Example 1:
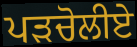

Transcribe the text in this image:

ਪੜਚੋਲੀਏ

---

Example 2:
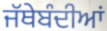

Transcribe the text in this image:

ਜੱਥੇਬੰਦੀਆਂ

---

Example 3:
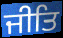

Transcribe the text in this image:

ਜੀਤਿ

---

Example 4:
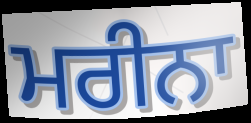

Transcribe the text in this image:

ਮਰੀਨਾ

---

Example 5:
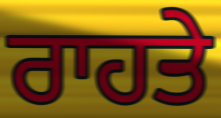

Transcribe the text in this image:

ਰਾਹਤੇ